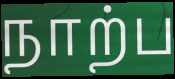
நாற்ப